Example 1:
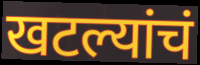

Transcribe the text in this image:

खटल्यांचं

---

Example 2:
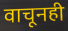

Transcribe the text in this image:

वाचूनही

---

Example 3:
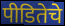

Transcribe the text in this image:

पीडितेचे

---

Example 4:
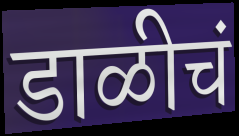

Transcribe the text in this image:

डाळीचं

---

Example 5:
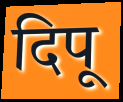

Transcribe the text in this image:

दिपू